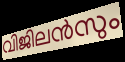
വിജിലൻസും